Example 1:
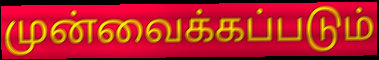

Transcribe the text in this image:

முன்வைக்கப்படும்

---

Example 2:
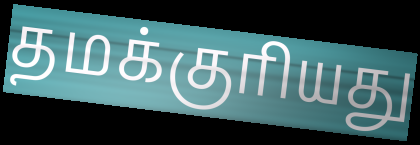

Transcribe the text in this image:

தமக்குரியது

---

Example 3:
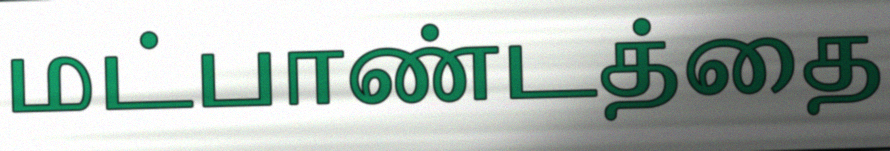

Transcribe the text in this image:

மட்பாண்டத்தை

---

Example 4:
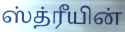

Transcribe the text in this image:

ஸ்த்ரீயின்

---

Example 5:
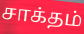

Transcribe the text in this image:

சாக்தம்